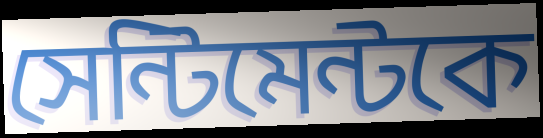
সেন্টিমেন্টকে